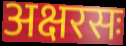
अक्षरसः